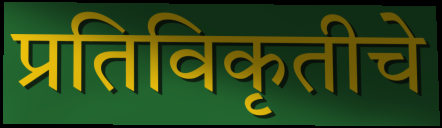
प्रतिविकृतीचे